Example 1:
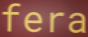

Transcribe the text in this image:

fera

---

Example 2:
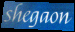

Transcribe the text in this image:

shegaon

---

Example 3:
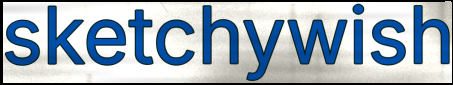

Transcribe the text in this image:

sketchywish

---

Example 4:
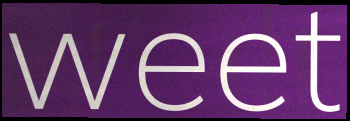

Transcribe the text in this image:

weet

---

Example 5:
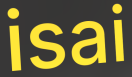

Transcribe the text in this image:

isai